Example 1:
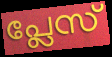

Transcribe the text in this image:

പ്ലേസ്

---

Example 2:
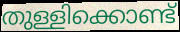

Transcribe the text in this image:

തുള്ളിക്കൊണ്ട്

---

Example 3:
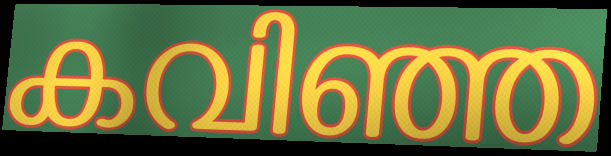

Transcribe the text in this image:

കവിഞ്ഞ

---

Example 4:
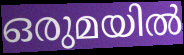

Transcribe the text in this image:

ഒരുമയിൽ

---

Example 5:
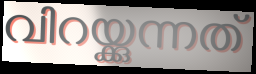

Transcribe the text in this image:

വിറയ്ക്കുന്നത്